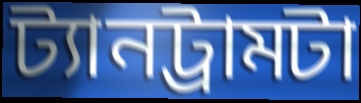
ট্যানট্রামটা